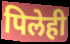
पिलेही